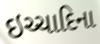
ઇચ્ચાદિના